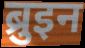
ब्रुइन